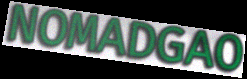
NOMADGAO